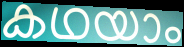
കഥയാം